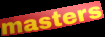
masters